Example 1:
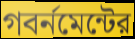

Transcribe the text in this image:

গবর্নমেন্টের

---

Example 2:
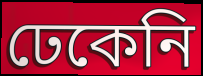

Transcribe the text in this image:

ঢেকেনি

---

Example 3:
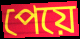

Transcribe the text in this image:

পেয়ে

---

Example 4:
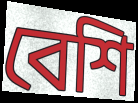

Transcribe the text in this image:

বেশি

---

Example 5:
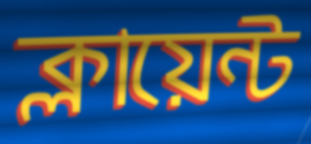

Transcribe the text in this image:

ক্লায়েন্ট